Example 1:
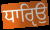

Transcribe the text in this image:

ਧਾਰੵਿਉ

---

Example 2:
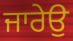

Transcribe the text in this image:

ਜਾਰੇਉ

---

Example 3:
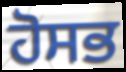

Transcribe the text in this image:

ਹੋਸਭ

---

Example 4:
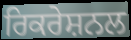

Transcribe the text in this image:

ਰਿਕਰੇਸ਼ਨਲ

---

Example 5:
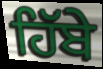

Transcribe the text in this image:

ਹਿੱਬੇ